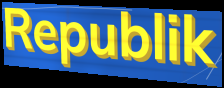
Republik